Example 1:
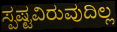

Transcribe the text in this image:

ಸ್ಪಷ್ಟವಿರುವುದಿಲ್ಲ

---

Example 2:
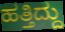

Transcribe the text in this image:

ಹತ್ತಿದ್ದು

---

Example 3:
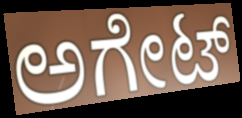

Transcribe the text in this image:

ಅಗೇಟ್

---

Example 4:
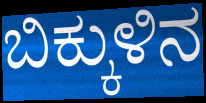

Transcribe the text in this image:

ಬಿಕ್ಕುಳಿನ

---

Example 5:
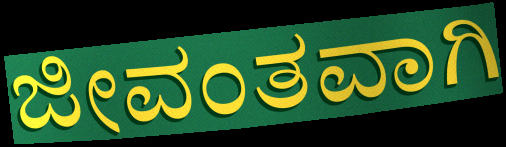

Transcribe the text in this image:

ಜೀವಂತವಾಗಿ